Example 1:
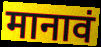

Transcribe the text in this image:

मानावं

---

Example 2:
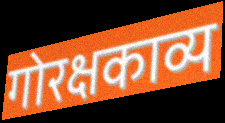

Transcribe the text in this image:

गोरक्षकाव्य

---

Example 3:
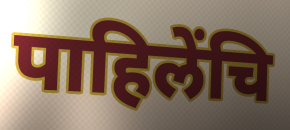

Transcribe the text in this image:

पाहिलेंचि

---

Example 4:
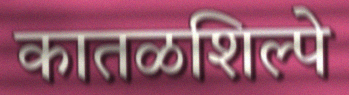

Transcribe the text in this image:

कातळशिल्पे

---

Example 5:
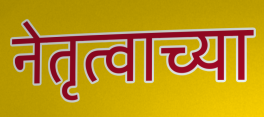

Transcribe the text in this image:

नेतृत्वाच्या